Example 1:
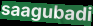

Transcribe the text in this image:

saagubadi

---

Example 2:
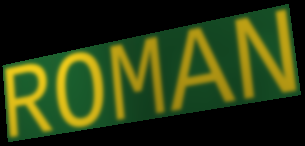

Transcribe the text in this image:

ROMAN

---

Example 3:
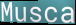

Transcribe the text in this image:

Musca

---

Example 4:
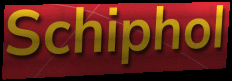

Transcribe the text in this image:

Schiphol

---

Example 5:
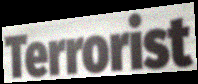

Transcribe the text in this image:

Terrorist